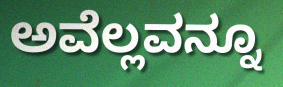
ಅವೆಲ್ಲವನ್ನೂ